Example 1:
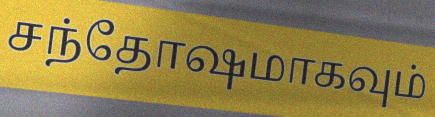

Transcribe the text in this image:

சந்தோஷமாகவும்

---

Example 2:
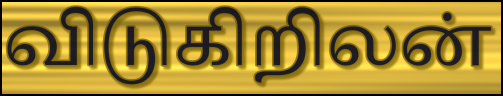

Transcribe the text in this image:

விடுகிறிலன்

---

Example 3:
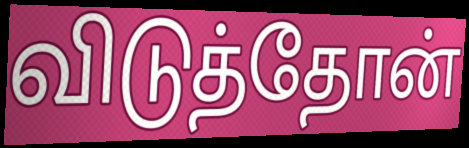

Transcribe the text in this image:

விடுத்தோன்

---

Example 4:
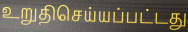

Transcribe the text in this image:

உறுதிசெய்யப்பட்டது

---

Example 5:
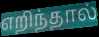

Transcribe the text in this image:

எறிந்தால்